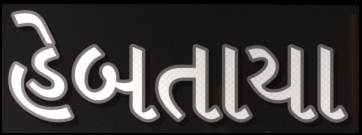
હેબતાયા